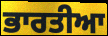
ਭਾਰਤੀਆ